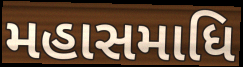
મહાસમાધિ